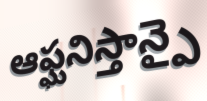
ఆఫ్ఘనిస్తాన్పై